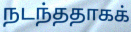
நடந்ததாகக்